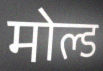
मोल्ड